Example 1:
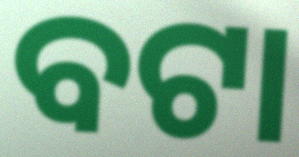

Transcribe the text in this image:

ବଟା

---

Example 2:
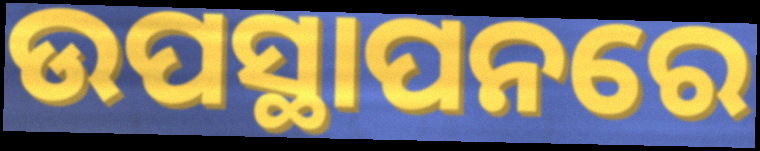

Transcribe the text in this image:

ଉପସ୍ଥାପନରେ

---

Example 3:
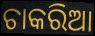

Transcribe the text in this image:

ଚାକରିଆ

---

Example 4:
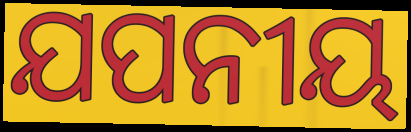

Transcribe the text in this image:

ଯପନୀୟ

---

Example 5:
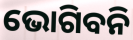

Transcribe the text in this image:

ଭୋଗିବନି